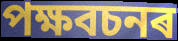
পক্ষবচনৰ